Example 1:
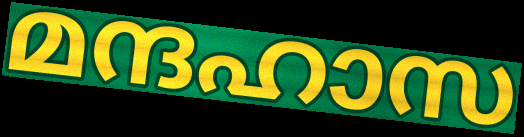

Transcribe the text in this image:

മന്ദഹാസ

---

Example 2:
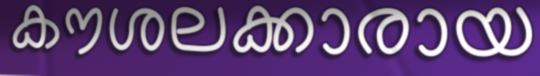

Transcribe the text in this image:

കൗശലക്കാരായ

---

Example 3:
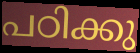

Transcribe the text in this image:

പഠിക്കു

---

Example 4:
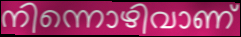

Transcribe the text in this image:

നിന്നൊഴിവാണ്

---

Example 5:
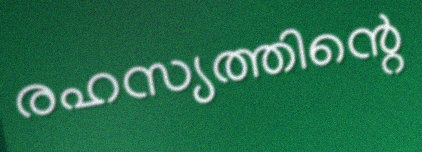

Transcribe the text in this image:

രഹസ്യത്തിന്റെ